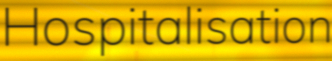
Hospitalisation